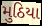
મુઠિયા